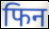
फिन